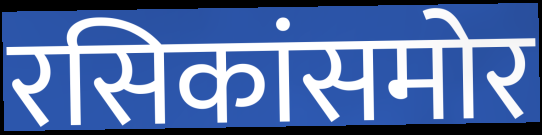
रसिकांसमोर